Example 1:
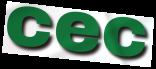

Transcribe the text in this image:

cec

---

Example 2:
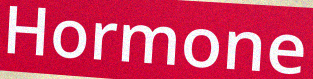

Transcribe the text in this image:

Hormone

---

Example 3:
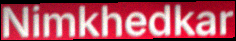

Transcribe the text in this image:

Nimkhedkar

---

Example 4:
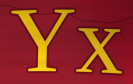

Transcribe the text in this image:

Yx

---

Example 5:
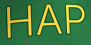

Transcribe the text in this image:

HAP